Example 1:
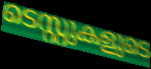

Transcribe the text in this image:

ടെസ്റ്റുകളുടെ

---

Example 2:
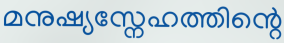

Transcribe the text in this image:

മനുഷ്യസ്നേഹത്തിന്റെ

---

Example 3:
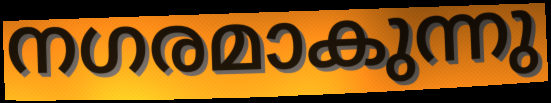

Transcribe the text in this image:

നഗരമാകുന്നു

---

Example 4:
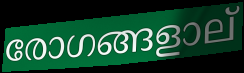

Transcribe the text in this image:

രോഗങ്ങളാല്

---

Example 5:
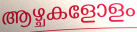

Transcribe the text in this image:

ആഴ്ചകളോളം